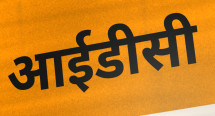
आईडीसी